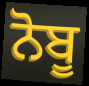
ਨੋਬੂ